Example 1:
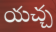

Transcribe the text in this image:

యచ్చ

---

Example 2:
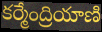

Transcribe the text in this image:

కర్మేంద్రియాణి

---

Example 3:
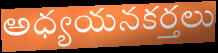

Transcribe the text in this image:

అధ్యయనకర్తలు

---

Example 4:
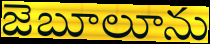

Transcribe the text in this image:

జెబూలూను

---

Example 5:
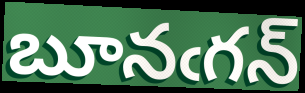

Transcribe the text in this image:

బూనఁగన్